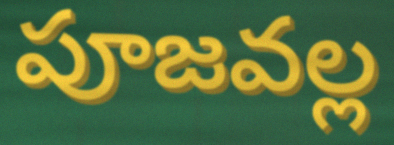
పూజవల్ల